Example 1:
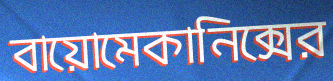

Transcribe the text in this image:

বায়োমেকানিক্সের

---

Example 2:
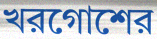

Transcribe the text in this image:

খরগোশের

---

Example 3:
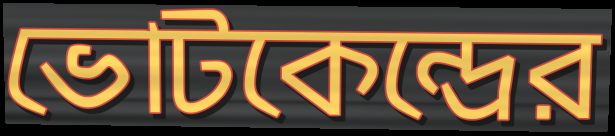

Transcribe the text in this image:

ভোটকেন্দ্রের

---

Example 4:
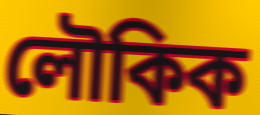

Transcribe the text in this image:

লৌকিক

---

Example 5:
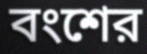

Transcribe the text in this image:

বংশের